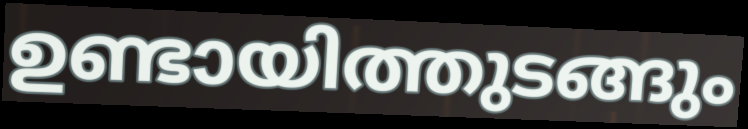
ഉണ്ടായിത്തുടങ്ങും